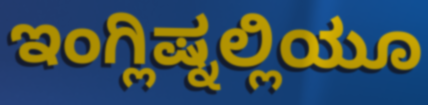
ಇಂಗ್ಲಿಷ್ನಲ್ಲಿಯೂ